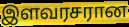
இளவரசரான